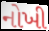
નોખી